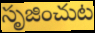
సృజించుట